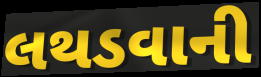
લથડવાની